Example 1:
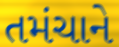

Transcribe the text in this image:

તમંચાને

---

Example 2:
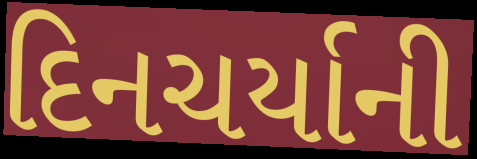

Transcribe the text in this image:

દિનચર્યાની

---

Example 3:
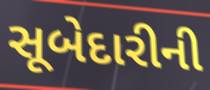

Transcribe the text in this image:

સૂબેદારીની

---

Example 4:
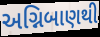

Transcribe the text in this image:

અગ્નિબાણથી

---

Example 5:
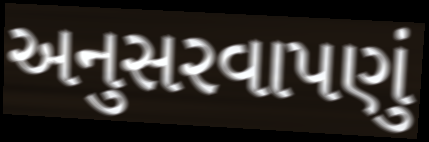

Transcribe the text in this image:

અનુસરવાપણું